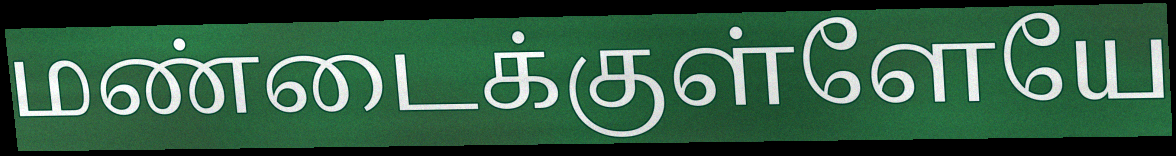
மண்டைக்குள்ளேயே